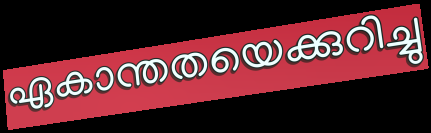
ഏകാന്തതയെക്കുറിച്ചു